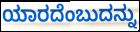
ಯಾರದೆಂಬುದನ್ನು